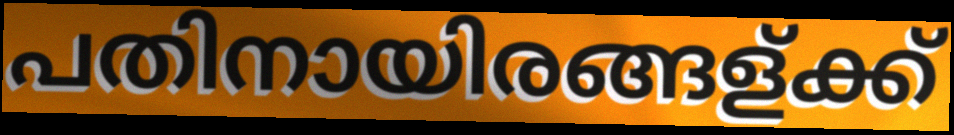
പതിനായിരങ്ങള്ക്ക്